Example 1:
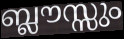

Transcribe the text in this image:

ബ്ലൗസ്സും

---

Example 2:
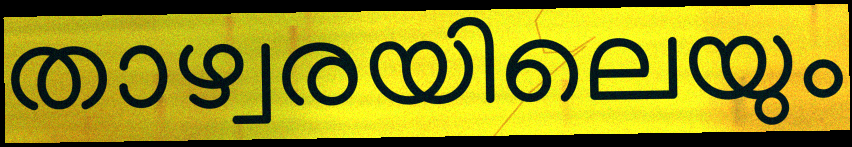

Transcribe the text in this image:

താഴ്വരയിലെയും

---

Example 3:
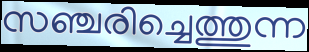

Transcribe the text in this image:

സഞ്ചരിച്ചെത്തുന്ന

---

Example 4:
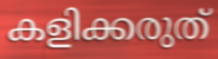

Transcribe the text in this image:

കളിക്കരുത്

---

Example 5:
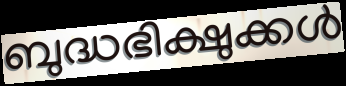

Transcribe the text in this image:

ബുദ്ധഭിക്ഷുക്കൾ